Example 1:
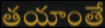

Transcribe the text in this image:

తయాంతే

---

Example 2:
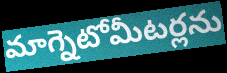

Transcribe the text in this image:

మాగ్నెటోమీటర్లను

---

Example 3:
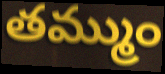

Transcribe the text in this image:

తమ్ముం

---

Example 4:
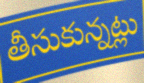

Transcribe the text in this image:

తీసుకున్నట్లు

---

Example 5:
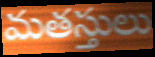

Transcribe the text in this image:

మతస్తులు